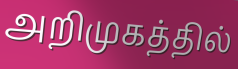
அறிமுகத்தில்